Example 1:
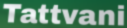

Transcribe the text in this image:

Tattvani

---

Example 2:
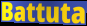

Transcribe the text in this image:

Battuta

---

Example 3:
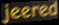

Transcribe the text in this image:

jeered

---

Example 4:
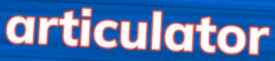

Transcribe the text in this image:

articulator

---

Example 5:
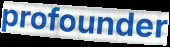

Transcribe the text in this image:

profounder